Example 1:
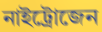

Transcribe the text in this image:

নাইট্রোজেন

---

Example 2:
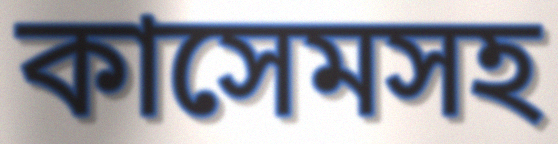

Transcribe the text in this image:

কাসেমসহ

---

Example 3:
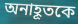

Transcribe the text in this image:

অনাহূতকে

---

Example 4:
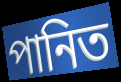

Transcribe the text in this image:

পানিত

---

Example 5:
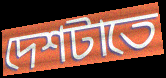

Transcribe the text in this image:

দেশটাতে